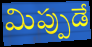
మిప్పుడే